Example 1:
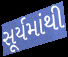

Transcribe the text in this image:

સૂર્યમાંથી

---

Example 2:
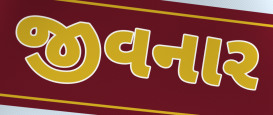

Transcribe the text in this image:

જીવનાર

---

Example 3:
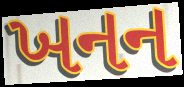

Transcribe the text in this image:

ખનન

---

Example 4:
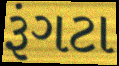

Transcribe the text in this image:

રૂંગટા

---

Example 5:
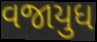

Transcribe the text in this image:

વજાયુધ